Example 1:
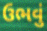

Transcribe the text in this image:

ઉભવું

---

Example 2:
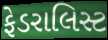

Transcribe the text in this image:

ફેડરાલિસ્ટ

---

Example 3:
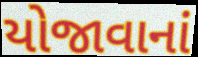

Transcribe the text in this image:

યોજાવાનાં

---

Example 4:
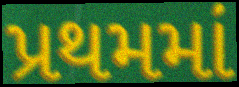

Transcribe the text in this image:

પ્રથમમાં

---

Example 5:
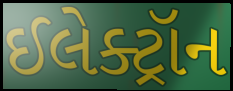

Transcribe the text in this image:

ઈલેક્ટ્રૉન